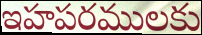
ఇహపరములకు